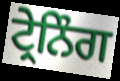
ਟ੍ਰੇਨਿੰਗ